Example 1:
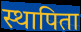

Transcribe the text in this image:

स्थापिता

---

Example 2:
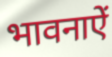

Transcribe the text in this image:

भावनाऐं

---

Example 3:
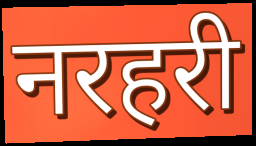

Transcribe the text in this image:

नरहरी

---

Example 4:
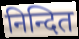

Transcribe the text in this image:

निन्दित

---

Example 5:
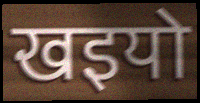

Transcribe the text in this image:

खइयो